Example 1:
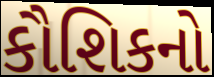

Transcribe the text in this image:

કૌશિકનો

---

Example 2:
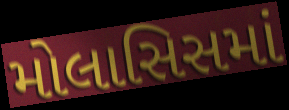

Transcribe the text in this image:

મોલાસિસમાં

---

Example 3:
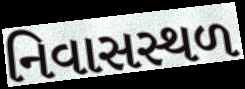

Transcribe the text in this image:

નિવાસસ્થળ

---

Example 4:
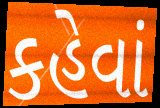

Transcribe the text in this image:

કહેવાં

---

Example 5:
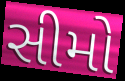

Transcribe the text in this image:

સીમો